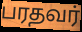
பரதவர்